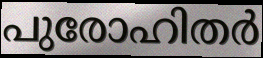
പുരോഹിതർ